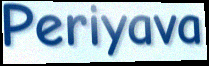
Periyava